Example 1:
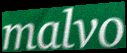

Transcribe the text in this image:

malvo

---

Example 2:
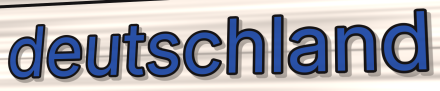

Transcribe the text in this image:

deutschland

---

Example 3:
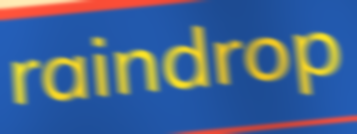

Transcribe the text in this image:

raindrop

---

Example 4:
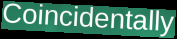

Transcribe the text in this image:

Coincidentally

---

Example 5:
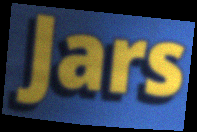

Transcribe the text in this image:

Jars